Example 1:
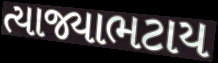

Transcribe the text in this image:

ત્યાજ્યાભટાય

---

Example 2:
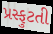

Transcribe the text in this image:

પ્રસ્ફુટતી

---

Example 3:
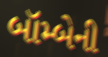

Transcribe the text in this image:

બૉમ્બેની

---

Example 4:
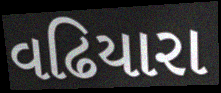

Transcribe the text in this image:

વઢિયારા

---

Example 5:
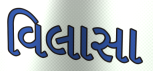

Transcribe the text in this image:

વિલાસા